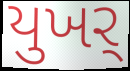
યુખર્